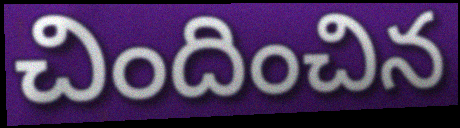
చిందించిన